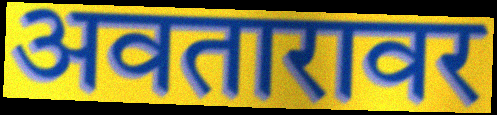
अवतारावर